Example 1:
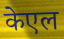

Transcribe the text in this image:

केएल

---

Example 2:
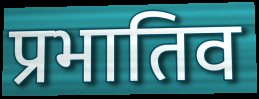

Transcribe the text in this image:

प्रभातिव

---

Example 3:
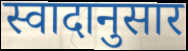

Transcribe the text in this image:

स्वादानुसार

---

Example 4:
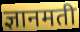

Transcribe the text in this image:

ज्ञानमती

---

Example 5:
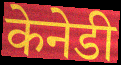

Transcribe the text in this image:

केनेडी